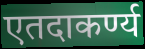
एतदाकर्ण्य